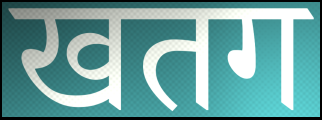
खतग